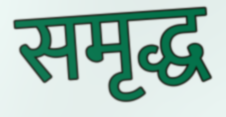
समृद्ध